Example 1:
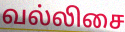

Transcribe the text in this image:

வல்லிசை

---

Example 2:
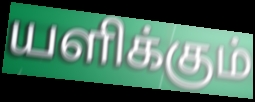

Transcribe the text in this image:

யளிக்கும்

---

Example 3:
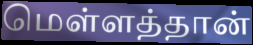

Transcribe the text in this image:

மெள்ளத்தான்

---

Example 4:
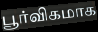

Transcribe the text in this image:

பூர்விகமாக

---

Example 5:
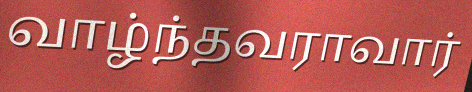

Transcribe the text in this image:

வாழ்ந்தவராவார்